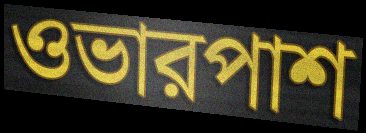
ওভারপাশ